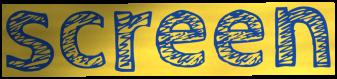
screen